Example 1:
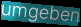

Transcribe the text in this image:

umgeben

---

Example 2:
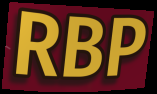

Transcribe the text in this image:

RBP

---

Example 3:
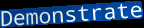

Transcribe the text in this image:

Demonstrate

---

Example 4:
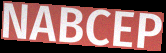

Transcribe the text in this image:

NABCEP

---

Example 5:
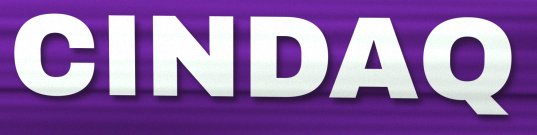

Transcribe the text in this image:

CINDAQ